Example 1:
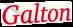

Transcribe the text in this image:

Galton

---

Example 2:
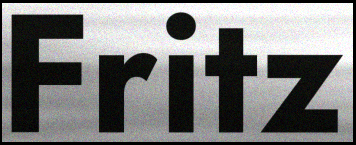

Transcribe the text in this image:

Fritz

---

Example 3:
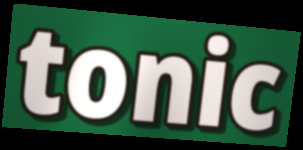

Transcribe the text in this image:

tonic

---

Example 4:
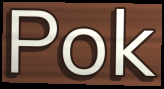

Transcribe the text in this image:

Pok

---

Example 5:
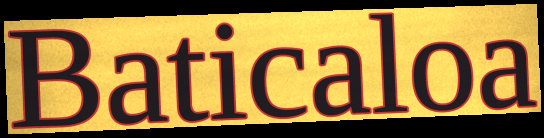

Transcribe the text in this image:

Baticaloa